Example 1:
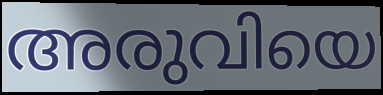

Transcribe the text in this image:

അരുവിയെ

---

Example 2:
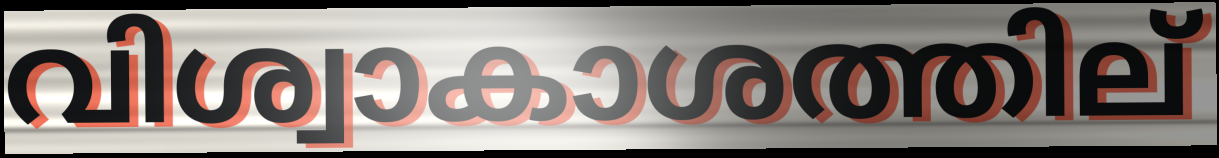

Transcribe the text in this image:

വിശ്വാകാശത്തില്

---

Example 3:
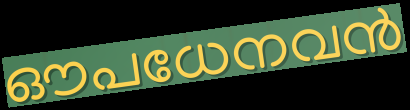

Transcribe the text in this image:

ഔപധേനവൻ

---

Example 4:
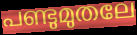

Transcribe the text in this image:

പണ്ടുമുതലേ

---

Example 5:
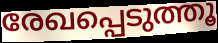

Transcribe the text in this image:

രേഖപ്പെടുത്തൂ